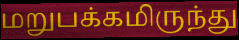
மறுபக்கமிருந்து